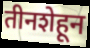
तीनशेहून